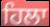
ਹਿਲਾ